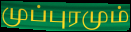
முப்புரமும்